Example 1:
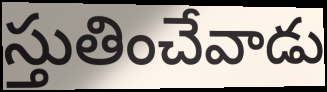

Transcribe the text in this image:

స్తుతించేవాడు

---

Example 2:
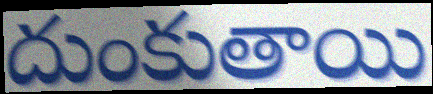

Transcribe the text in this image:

దుంకుతాయి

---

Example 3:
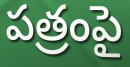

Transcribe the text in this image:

పత్రంపై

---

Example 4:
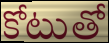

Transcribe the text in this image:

కోటుతో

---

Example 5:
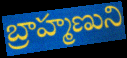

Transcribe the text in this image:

బ్రాహ్మణుని